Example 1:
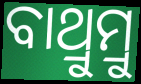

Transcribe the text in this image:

ବାଥ୍ରୁମ୍ରୁ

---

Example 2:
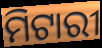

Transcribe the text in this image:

ମିଟାରୀ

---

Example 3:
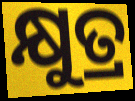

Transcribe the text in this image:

କ୍ଷୁତ୍ର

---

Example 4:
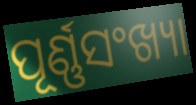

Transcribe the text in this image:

ପୂର୍ଣ୍ଣସଂଖ୍ୟା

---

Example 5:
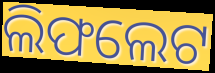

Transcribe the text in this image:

ଲିଫଲେଟ